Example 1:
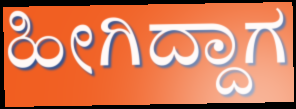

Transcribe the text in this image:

ಹೀಗಿದ್ದಾಗ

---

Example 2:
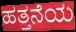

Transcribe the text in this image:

ಹತ್ತನೆಯ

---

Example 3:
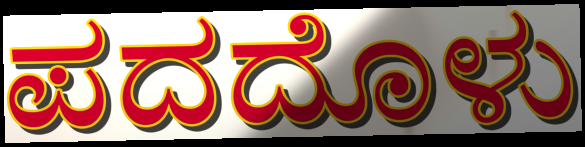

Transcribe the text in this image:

ಪದದೊಳು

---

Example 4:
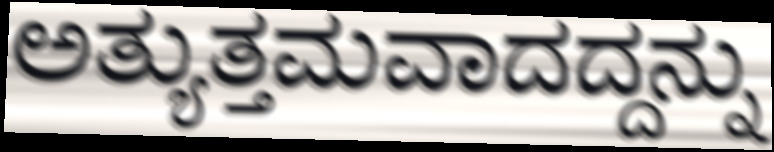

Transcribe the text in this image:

ಅತ್ಯುತ್ತಮವಾದದ್ದನ್ನು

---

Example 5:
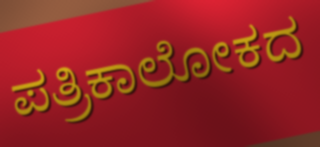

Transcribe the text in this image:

ಪತ್ರಿಕಾಲೋಕದ